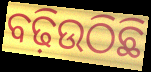
ବଢ଼ିଉଠିଛି